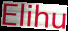
Elihu